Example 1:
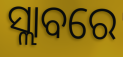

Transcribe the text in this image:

ସ୍ଲାବରେ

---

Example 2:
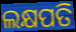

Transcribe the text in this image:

ଲକ୍ଷପତି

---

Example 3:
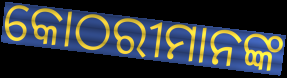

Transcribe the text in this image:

କୋଠରୀମାନଙ୍କ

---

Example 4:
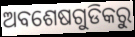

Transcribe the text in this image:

ଅବଶେଷଗୁଡିକରୁ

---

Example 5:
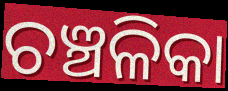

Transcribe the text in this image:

ଚଞ୍ଚଳିକା